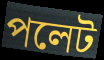
পলেট